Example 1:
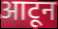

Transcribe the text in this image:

आटून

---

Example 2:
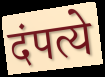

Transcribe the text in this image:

दंपत्ये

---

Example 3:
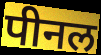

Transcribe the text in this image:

पीनल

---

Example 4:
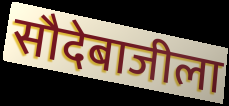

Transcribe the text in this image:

सौदेबाजीला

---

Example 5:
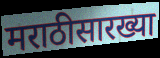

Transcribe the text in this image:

मराठीसारख्या